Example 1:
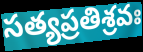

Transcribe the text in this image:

సత్యప్రతిశ్రవః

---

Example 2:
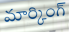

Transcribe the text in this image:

మార్కింగ్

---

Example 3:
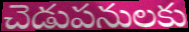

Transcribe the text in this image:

చెడుపనులకు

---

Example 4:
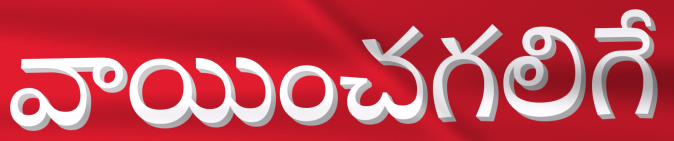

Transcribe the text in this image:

వాయించగలిగే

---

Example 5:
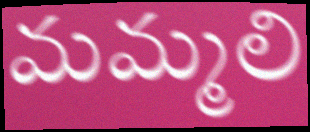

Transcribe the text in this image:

మమ్మలి